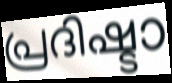
പ്രദിഷ്ടാ